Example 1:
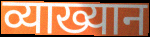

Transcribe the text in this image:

व्याख्यान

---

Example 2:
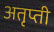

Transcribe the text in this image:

अतृप्ती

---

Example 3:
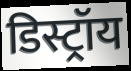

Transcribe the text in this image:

डिस्ट्रॉय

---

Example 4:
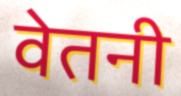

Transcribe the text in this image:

वेतनी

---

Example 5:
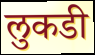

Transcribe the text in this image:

लुकडी